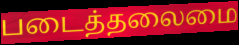
படைத்தலைமை